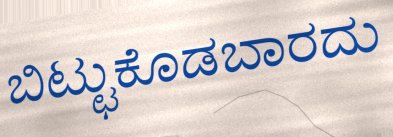
ಬಿಟ್ಟುಕೊಡಬಾರದು